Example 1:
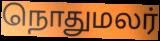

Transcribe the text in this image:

நொதுமலர்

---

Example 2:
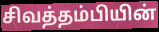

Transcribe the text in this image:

சிவத்தம்பியின்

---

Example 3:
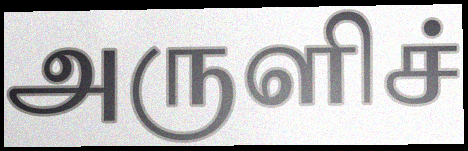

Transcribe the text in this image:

அருளிச்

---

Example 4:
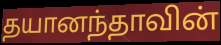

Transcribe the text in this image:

தயானந்தாவின்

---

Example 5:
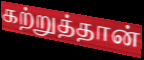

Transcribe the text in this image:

கற்றுத்தான்